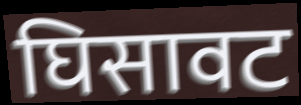
घिसावट